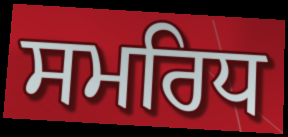
ਸਮਰਿਧ